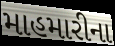
માહમારીના